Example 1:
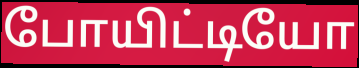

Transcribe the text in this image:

போயிட்டியோ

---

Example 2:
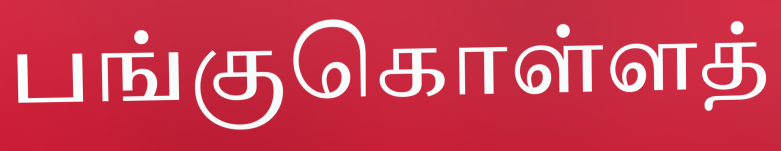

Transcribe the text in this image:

பங்குகொள்ளத்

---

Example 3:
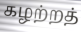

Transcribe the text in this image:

கழற்றத்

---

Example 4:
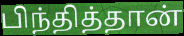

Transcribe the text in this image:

பிந்தித்தான்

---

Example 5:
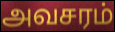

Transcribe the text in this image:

அவசரம்